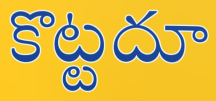
కొట్టదూ